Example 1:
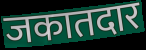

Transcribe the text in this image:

जकातदार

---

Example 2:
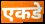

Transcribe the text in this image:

एकडे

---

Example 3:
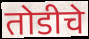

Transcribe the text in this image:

तोडीचे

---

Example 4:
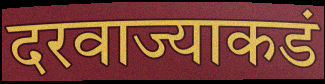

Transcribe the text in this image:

दरवाज्याकडं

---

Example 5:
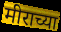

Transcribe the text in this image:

मीराच्या